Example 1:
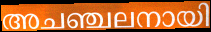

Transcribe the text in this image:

അചഞ്ചലനായി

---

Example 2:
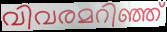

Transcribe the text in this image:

വിവരമറിഞ്ഞ്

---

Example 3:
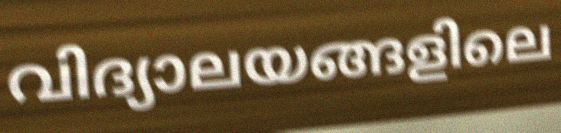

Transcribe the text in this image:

വിദ്യാലയങ്ങളിലെ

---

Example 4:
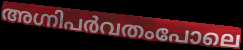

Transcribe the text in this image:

അഗ്നിപർവതംപോലെ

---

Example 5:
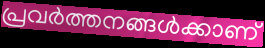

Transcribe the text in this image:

പ്രവർത്തനങ്ങൾക്കാണ്